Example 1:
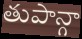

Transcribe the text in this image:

తుపాన్గా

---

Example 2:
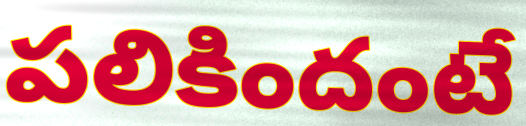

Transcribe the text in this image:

పలికిందంటే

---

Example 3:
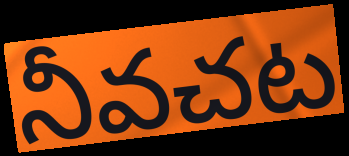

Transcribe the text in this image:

నీవచట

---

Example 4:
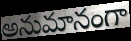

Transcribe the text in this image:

అనుమానంగా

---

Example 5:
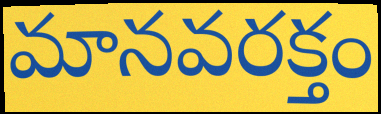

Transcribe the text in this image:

మానవరక్తం